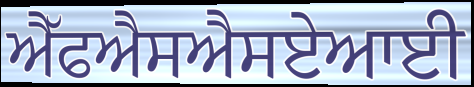
ਐੱਫਐਸਐਸਏਆਈ